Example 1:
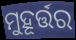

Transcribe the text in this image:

ମୁହୂର୍ତ୍ତର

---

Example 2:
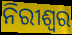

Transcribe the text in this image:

ନିରୀଶ୍ୱର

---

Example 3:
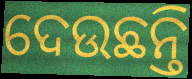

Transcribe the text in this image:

ଦେଉଛନ୍ତି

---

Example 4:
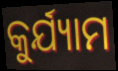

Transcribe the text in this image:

କୁର୍ଯ୍ୟାମ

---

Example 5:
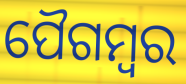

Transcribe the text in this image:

ପୈଗମ୍ବର